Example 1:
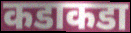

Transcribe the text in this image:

कडाकडा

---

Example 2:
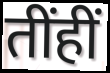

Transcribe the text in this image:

तींहीं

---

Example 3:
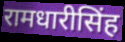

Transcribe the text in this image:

रामधारीसिंह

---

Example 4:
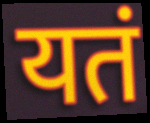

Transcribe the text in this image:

यतं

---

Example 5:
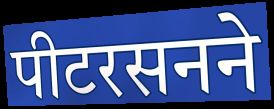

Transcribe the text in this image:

पीटरसनने